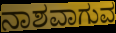
ನಾಶವಾಗುವ